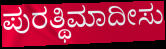
ಪುರತ್ಥಿಮಾದೀಸು